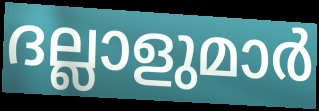
ദല്ലാളുമാർ